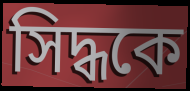
সিদ্ধকে